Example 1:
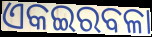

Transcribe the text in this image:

ଏକଇରବଳା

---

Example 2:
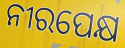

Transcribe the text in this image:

ନୀରପେକ୍ଷ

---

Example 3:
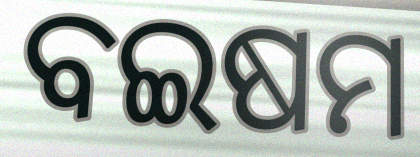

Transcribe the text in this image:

ବଇଷମ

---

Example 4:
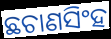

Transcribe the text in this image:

ଛଚାଣସିଂହ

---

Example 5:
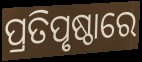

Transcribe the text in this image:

ପ୍ରତିପୃଷ୍ଠାରେ